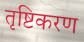
तृष्टिकरण